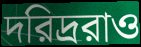
দরিদ্ররাও